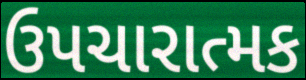
ઉપચારાત્મક